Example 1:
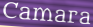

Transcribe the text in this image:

Camara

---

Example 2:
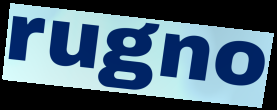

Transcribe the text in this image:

rugno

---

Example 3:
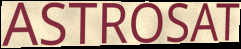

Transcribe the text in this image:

ASTROSAT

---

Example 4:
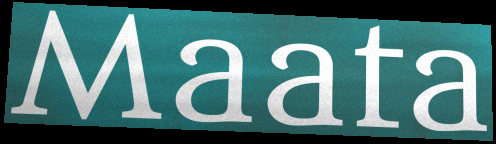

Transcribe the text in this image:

Maata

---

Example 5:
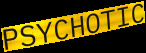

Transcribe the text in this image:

PSYCHOTIC